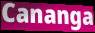
Cananga